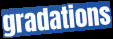
gradations